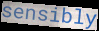
sensibly